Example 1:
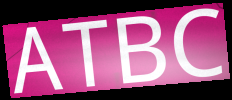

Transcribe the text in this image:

ATBC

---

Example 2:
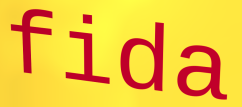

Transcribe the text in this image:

fida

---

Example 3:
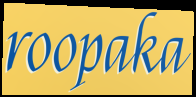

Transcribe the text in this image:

roopaka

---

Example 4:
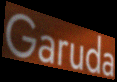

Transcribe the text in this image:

Garuda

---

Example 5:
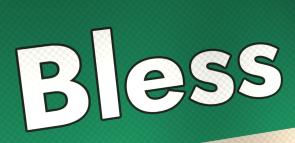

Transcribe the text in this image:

Bless